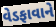
વેડફાવાને